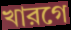
খারগে